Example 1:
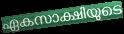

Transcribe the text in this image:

ഏകസാക്ഷിയുടെ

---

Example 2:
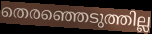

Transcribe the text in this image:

തെരഞ്ഞെടുത്തില്ല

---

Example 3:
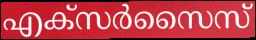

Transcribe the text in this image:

എക്സർസൈസ്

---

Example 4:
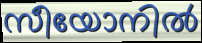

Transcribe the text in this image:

സീയോനിൽ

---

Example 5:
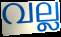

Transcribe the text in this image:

വല്ല